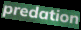
predation